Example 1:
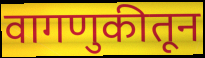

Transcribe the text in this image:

वागणुकीतून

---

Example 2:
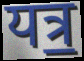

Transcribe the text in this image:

यत्र॒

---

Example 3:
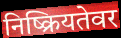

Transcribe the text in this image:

निष्क्रियतेवर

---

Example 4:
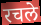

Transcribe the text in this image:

रचले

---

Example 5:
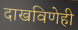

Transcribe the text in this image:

दाखविणेही